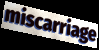
miscarriage